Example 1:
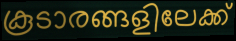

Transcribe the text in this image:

കൂടാരങ്ങളിലേക്ക്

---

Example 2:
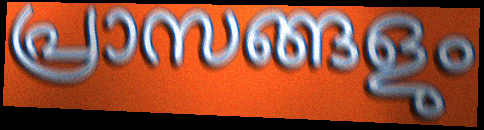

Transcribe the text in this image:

പ്രാസങ്ങളും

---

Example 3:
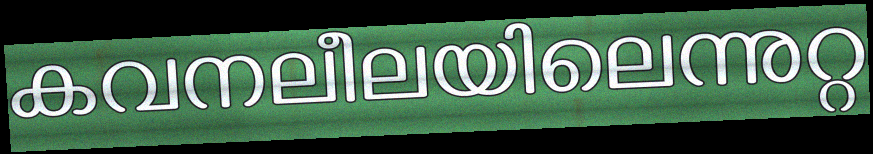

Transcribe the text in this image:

കവനലീലയിലെന്നുറ്റ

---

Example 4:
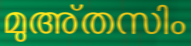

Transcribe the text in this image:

മുഅ്തസിം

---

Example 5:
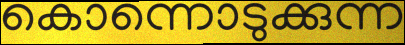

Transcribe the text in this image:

കൊന്നൊടുക്കുന്ന